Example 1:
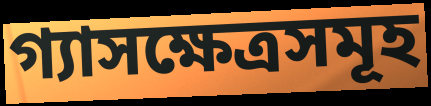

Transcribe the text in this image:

গ্যাসক্ষেত্রসমূহ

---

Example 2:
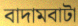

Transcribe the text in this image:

বাদামবাটা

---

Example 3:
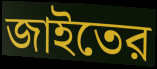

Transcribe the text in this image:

জাইতের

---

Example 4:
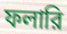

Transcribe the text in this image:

ফলারি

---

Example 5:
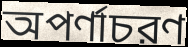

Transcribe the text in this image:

অপর্ণাচরণ